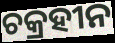
ଚକ୍ରହୀନ